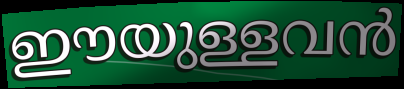
ഈയുള്ളവൻ